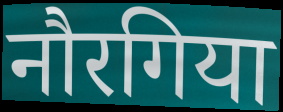
नौरगिया